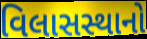
વિલાસસ્થાનો